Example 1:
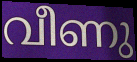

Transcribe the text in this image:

വീണു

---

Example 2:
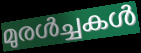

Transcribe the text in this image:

മുരൾച്ചകൾ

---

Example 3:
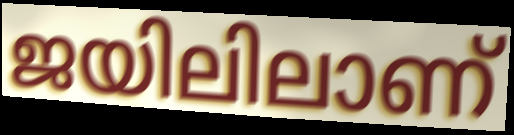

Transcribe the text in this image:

ജയിലിലാണ്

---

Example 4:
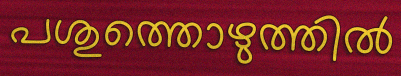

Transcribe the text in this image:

പശുത്തൊഴുത്തിൽ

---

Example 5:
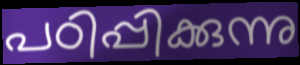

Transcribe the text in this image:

പഠിപ്പിക്കുന്നു